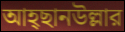
আহ্ছানউল্লার